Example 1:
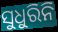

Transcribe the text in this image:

ସୁଧୁରିନି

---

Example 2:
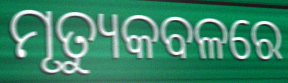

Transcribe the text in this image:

ମୃତ୍ୟୁକବଳରେ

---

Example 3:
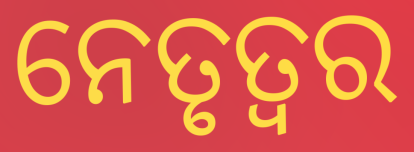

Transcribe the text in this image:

ନେତୃତ୍ବର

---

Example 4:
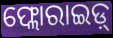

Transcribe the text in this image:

ଫ୍ଲୋରାଇଡ଼୍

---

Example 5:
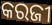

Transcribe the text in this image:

କରଜୀ